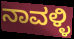
ನಾವಳ್ಳಿ